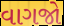
વાગજો